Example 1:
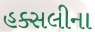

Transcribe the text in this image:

હક્સલીના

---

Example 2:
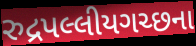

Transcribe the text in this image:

રુદ્રપલ્લીયગચ્છના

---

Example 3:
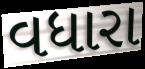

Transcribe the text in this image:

વધારા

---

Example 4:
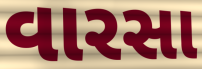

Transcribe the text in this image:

વારસા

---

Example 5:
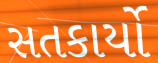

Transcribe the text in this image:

સતકાર્યો